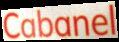
Cabanel